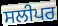
ਸਲੀਪਰ